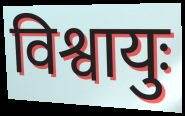
विश्वायुः